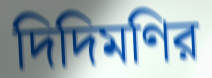
দিদিমণির